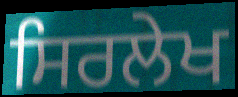
ਸਿਰਲੇਖ